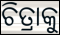
ଚିତ୍ରାକୁ